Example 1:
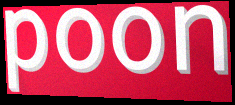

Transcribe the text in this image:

poon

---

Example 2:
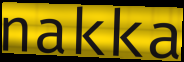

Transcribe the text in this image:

nakka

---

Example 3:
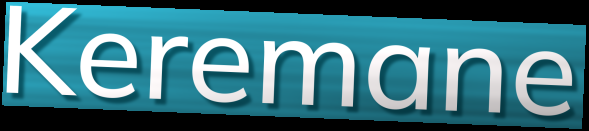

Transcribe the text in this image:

Keremane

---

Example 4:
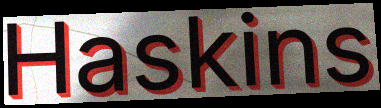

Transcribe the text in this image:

Haskins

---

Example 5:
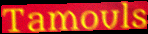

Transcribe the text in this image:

Tamouls